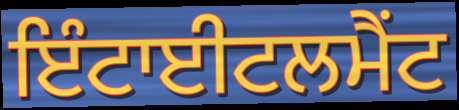
ਇੰਟਾਈਟਲਮੈਂਟ